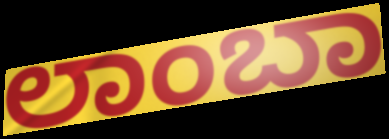
ಲಾಂಬಾ